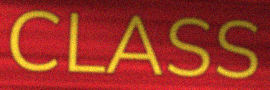
CLASS